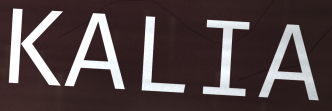
KALIA